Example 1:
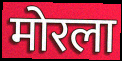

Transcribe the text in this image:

मोरला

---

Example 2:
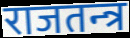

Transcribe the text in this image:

राजतन्त्र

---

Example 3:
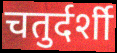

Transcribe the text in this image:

चतुर्दर्शी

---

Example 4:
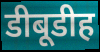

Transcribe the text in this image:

डीबूडीह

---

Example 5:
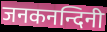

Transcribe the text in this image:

जनकनन्दिनी